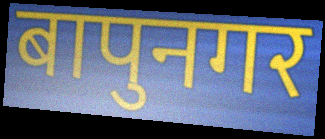
बापुनगर